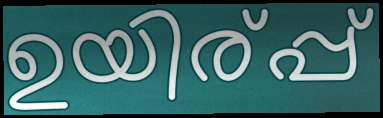
ഉയിര്പ്പ്